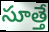
సూత్తే